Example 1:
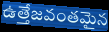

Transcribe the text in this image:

ఉత్తేజవంతమైన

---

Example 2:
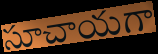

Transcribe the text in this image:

సూచాయగా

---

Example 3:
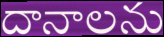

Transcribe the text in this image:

దానాలను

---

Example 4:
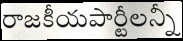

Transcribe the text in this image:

రాజకీయపార్టీలన్నీ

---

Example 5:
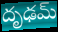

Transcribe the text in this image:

దృఢమ్